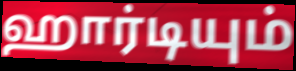
ஹார்டியும்